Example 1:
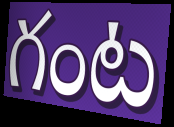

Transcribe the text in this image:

గంట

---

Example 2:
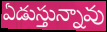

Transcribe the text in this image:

ఏడుస్తున్నావు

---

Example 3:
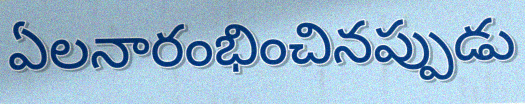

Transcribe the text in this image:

ఏలనారంభించినప్పుడు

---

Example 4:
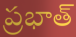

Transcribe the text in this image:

ప్రభాత్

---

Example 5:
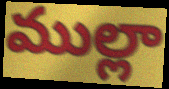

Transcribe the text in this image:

ముల్లా